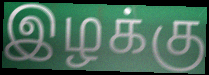
இழக்கு